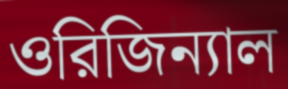
ওরিজিন্যাল